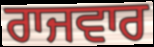
ਰਾਜਵਾਰ